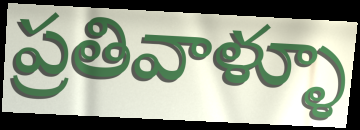
ప్రతివాళ్ళూ